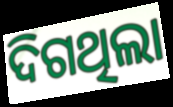
ଦିଗଥିଲା